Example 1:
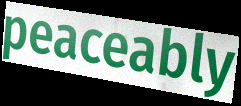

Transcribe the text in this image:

peaceably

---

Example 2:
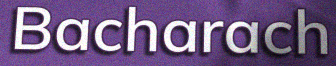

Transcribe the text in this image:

Bacharach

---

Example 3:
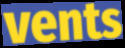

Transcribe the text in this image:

vents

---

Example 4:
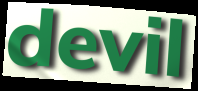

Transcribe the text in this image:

devil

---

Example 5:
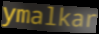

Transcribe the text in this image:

ymalkar